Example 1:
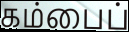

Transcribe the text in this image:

கம்பைப்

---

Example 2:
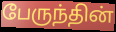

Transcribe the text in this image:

பேருந்தின்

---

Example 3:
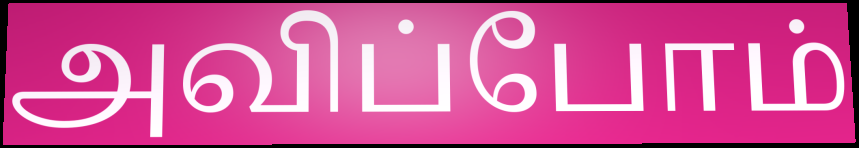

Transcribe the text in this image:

அவிப்போம்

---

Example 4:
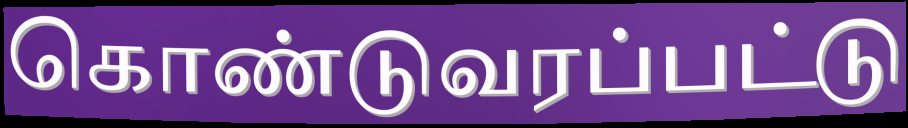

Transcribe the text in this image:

கொண்டுவரப்பட்டு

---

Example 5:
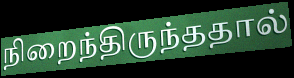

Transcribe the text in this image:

நிறைந்திருந்ததால்